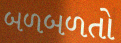
બળબળતો